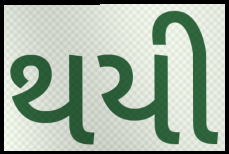
થયી